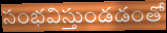
సంభవిస్తుండడంతో